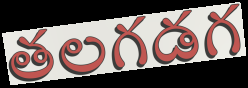
తలగడగ